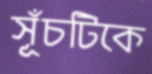
সূঁচটিকে